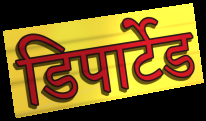
डिपार्टेड